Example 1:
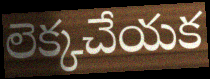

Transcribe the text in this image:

లెక్కచేయక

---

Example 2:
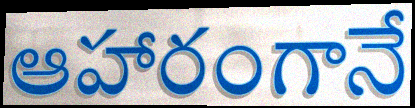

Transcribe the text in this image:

ఆహారంగానే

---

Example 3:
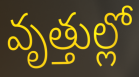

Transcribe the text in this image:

వృత్తుల్లో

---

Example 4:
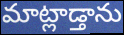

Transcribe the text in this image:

మాట్లాడ్తాను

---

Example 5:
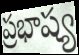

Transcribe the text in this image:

ప్రభాష్య